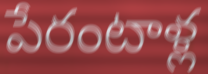
పేరంటాళ్ల